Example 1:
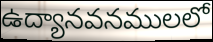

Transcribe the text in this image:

ఉద్యానవనములలో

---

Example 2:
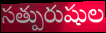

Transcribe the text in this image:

సత్పురుషుల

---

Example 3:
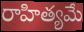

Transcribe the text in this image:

రాహిత్యమే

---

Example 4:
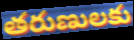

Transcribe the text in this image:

తరుణులకు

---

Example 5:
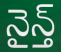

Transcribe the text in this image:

నైన్త్